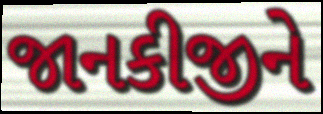
જાનકીજીને